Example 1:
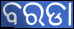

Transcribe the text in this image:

ବରଡା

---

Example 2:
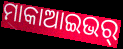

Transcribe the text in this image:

ମାକାଆଇଭର୍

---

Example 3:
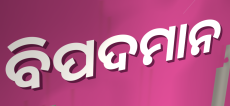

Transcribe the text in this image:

ବିପଦମାନ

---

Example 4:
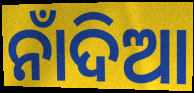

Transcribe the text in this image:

ନାଁଦିଆ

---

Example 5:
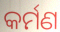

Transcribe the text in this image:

କର୍ମଣ